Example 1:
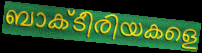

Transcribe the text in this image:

ബാക്ടീരിയകളെ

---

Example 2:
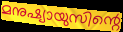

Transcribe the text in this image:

മനുഷ്യായുസിന്റെ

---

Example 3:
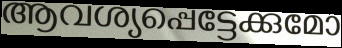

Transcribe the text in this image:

ആവശ്യപ്പെട്ടേക്കുമോ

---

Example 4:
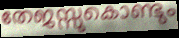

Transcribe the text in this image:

തേജസ്സുകൊണ്ടും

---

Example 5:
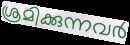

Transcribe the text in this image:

ശ്രമിക്കുന്നവർ